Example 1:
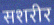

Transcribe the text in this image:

सशरीर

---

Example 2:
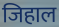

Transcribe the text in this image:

जिहाल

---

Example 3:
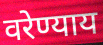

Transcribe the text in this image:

वरेण्याय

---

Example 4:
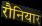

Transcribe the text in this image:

रौनियार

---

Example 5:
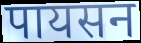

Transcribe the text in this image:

पायसन